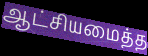
ஆட்சியமைத்த